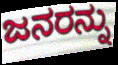
ಜನರನ್ನು